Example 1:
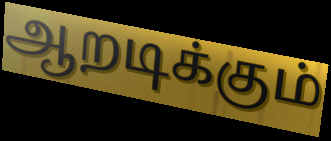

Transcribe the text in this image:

ஆறடிக்கும்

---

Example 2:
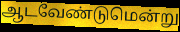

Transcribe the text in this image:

ஆடவேண்டுமென்று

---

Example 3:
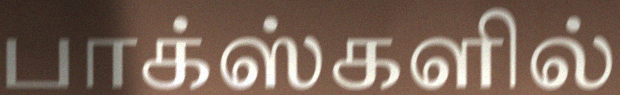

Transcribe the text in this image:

பாக்ஸ்களில்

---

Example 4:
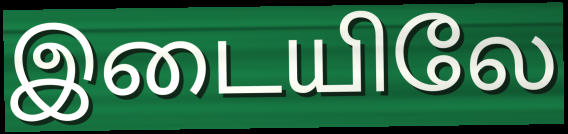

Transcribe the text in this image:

இடையிலே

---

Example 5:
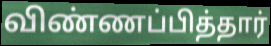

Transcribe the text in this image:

விண்ணப்பித்தார்